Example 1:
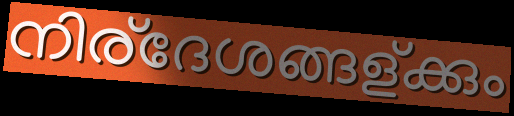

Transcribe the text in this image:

നിര്ദേശങ്ങള്ക്കും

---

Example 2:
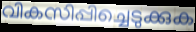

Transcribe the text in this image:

വികസിപ്പിച്ചെടുക്കുക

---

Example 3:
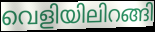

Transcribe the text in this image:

വെളിയിലിറങ്ങി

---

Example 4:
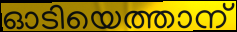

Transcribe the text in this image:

ഓടിയെത്താന്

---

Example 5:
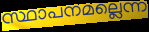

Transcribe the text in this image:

സ്ഥാപനമല്ലെന്ന